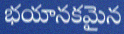
భయానకమైన